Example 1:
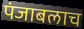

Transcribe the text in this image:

पंजाबलाच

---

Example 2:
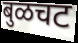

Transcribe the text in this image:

बुळचट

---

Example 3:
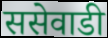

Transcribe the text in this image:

ससेवाडी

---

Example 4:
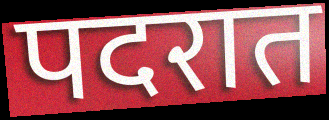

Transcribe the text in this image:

पदरात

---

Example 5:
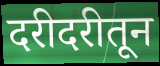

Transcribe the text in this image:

दरीदरीतून